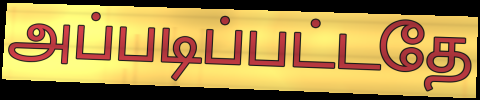
அப்படிப்பட்டதே